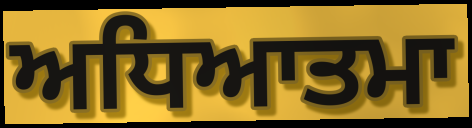
ਅਧਿਆਤਮਾ